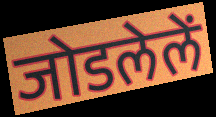
जोडलेलें